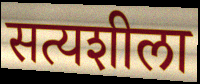
सत्यशीला